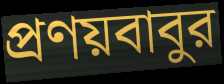
প্রণয়বাবুর